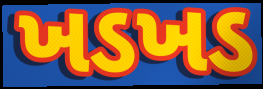
ખડખડ